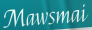
Mawsmai